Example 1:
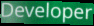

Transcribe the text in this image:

Developer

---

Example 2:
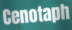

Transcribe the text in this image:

Cenotaph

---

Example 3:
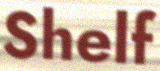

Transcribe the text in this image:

Shelf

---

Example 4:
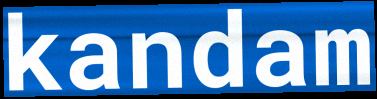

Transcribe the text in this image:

kandam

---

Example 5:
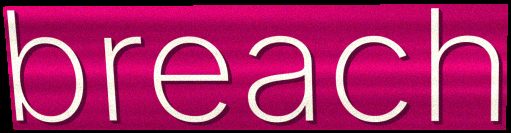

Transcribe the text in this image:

breach